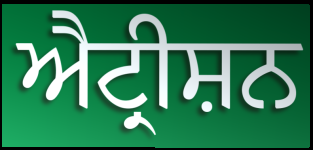
ਐਟ੍ਰੀਸ਼ਨ